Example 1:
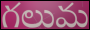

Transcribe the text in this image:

గలుమ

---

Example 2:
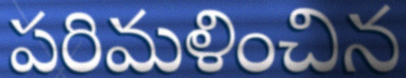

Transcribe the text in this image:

పరిమళించిన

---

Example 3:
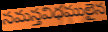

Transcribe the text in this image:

సమస్తవిధములైన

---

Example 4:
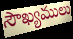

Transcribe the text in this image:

సౌఖ్యములు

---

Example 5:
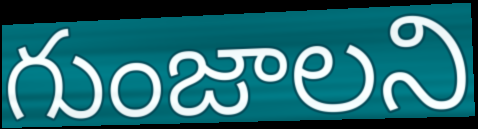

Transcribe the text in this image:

గుంజాలని